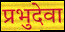
प्रभुदेवा